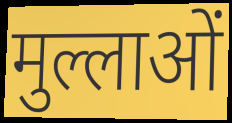
मुल्लाओं